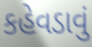
કહેવડાવું